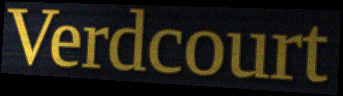
Verdcourt